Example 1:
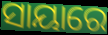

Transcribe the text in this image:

ସାୟାରେ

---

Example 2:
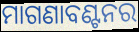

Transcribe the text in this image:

ମାଗଣାବଣ୍ଟନର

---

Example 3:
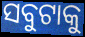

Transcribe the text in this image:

ସବୁଟାକୁ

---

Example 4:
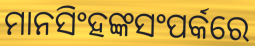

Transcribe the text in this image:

ମାନସିଂହଙ୍କସଂପର୍କରେ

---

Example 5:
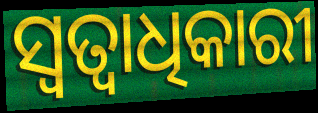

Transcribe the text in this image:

ସ୍ବତ୍ବାଧିକାରୀ